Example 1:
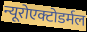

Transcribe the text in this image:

न्यूरोएक्टोडर्मल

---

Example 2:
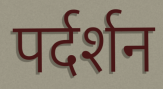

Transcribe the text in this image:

पर्दर्शन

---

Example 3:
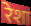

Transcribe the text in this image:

रेशा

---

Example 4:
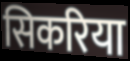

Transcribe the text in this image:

सिकरिया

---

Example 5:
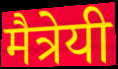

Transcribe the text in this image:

मैत्रेयी